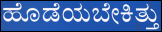
ಹೊಡೆಯಬೇಕಿತ್ತು